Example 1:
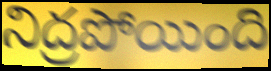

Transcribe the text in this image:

నిద్రపోయింది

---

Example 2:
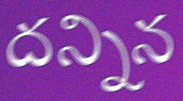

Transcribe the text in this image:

దన్నిన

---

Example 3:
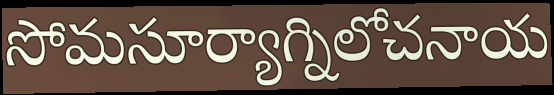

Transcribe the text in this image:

సోమసూర్యాగ్నిలోచనాయ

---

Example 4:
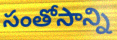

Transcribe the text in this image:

సంతోసాన్ని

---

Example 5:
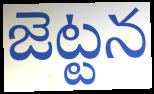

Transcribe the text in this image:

జెట్టన